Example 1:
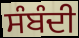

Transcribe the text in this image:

ਸੰਬੰਦੀ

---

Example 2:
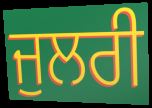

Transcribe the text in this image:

ਜੁਲਰੀ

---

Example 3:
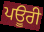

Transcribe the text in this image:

ਪਊਰੀ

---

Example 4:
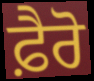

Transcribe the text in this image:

ਫ਼ੈਰੋ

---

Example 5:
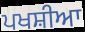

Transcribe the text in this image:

ਪਖਸ਼ੀਆ